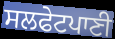
ਸਲਫੇਟਪਾਣੀ